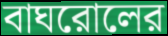
বাঘরোলের